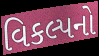
વિકલ્પનો